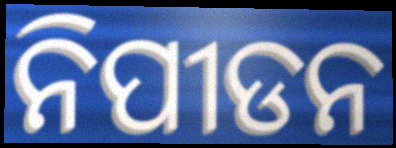
ନିପୀଡନ